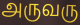
அருவரு